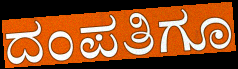
ದಂಪತಿಗೂ